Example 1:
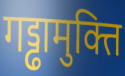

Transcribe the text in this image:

गड्ढामुक्ति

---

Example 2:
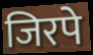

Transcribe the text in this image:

जिरपे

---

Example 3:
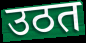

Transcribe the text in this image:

उठत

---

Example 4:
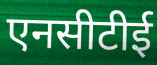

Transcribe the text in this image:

एनसीटीई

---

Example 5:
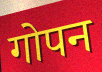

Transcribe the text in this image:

गोपन